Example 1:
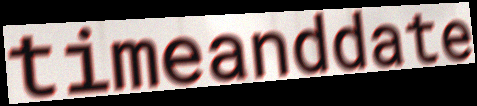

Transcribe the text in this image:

timeanddate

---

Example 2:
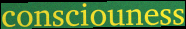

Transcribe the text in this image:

consciouness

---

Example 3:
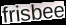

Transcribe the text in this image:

frisbee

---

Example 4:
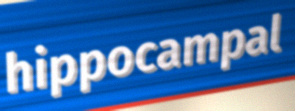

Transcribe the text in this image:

hippocampal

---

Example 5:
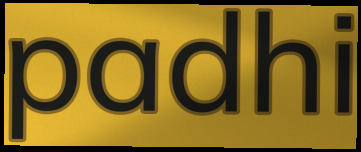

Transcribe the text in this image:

padhi